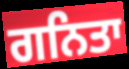
ਗਨਿਤਾ